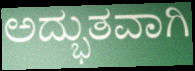
ಅದ್ಭುತವಾಗಿ